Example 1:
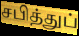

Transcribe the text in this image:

சபித்துப்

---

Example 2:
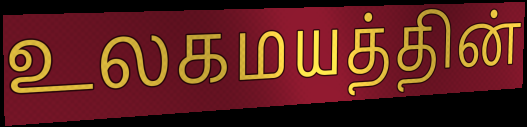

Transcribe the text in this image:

உலகமயத்தின்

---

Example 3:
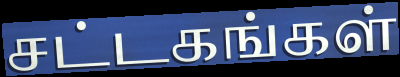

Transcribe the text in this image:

சட்டகங்கள்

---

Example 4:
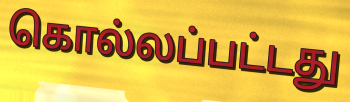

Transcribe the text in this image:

கொல்லப்பட்டது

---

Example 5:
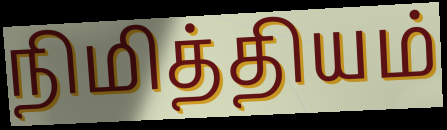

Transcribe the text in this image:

நிமித்தியம்